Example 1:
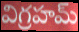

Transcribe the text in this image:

విగ్రహమ్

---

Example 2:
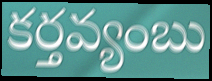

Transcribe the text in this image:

కర్తవ్యంబు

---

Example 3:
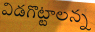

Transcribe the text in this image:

విడగొట్టాలన్న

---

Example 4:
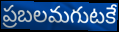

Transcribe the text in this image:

ప్రబలమగుటకే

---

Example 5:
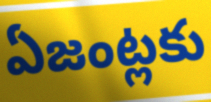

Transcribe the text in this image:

ఏజంట్లకు